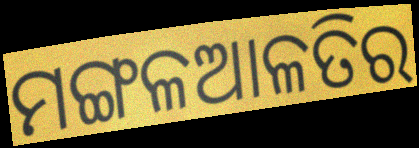
ମଙ୍ଗଳଆଳତିର